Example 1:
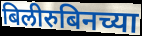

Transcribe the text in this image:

बिलीरुबिनच्या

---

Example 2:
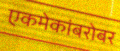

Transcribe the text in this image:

एकमेकांबरोबर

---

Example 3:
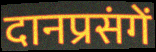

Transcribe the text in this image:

दानप्रसंगें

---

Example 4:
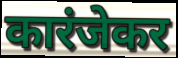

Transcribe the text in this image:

कारंजेकर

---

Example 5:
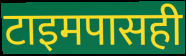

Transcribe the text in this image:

टाइमपासही